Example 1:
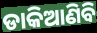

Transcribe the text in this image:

ଡାକିଆଣିବି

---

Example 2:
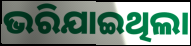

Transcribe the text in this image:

ଭରିଯାଇଥିଲା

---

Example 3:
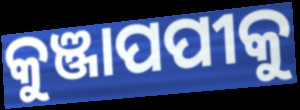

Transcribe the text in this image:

କୁଞ୍ଜାପପୀକୁ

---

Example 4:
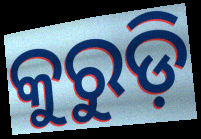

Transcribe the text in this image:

କୁରୁଡ଼ି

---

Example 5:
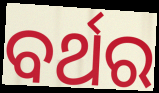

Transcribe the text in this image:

ବର୍ଥର